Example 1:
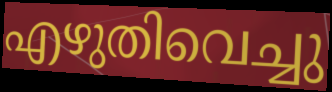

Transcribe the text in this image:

എഴുതിവെച്ചു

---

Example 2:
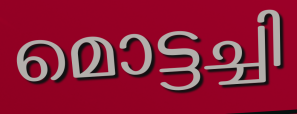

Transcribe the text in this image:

മൊട്ടച്ചി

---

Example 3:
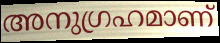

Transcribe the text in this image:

അനുഗ്രഹമാണ്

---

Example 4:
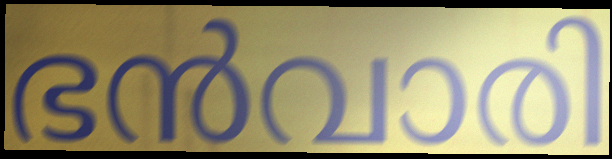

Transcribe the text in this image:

ഭൻവാരി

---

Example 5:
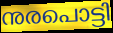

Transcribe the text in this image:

നുരപൊട്ടി